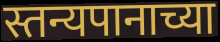
स्तन्यपानाच्या